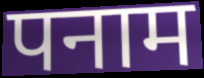
पनाम